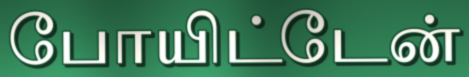
போயிட்டேன்